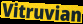
Vitruvian